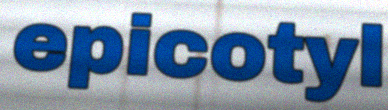
epicotyl